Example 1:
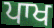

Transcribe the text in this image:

ਪਾਖ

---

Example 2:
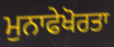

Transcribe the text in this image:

ਮੁਨਾਫੇਖੋਰਤਾ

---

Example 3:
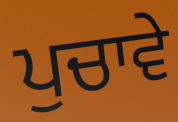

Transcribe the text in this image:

ਪੁਚਾਵੇ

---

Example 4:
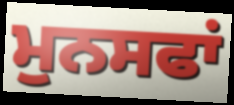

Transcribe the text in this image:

ਮੁਨਸਫਾਂ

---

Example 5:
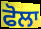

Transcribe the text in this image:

ਫੋਲਾ